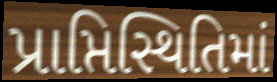
પ્રાપ્તિસ્થિતિમાં